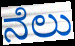
ನೆಲು